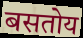
बसतोय